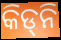
କିଡ୍‌ନି